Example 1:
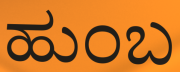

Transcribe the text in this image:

ಹುಂಬ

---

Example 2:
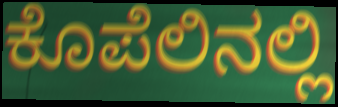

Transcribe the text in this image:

ಕೊಪೆಲಿನಲ್ಲಿ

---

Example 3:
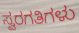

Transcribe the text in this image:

ಸ್ವರಗತಿಗಳು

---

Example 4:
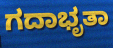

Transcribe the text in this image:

ಗದಾಭೃತಾ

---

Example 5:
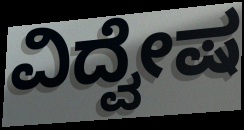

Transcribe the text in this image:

ವಿದ್ವೇಷ